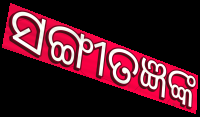
ସଙ୍ଗୀତଜ୍ଞଙ୍କ